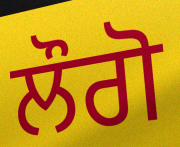
ਲੌਗੋ